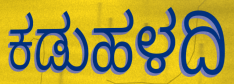
ಕಡುಹಳದಿ